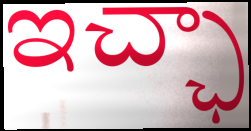
ఇచ్ఛా